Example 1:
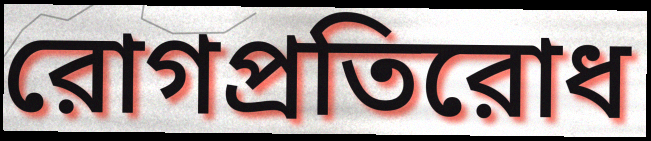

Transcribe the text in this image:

রোগপ্রতিরোধ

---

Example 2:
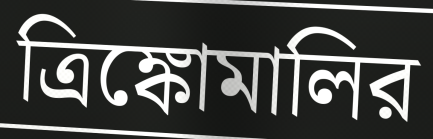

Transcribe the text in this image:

ত্রিঙ্কোমালির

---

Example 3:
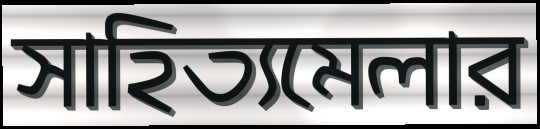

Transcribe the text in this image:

সাহিত্যমেলার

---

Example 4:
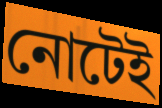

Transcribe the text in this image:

নোটেই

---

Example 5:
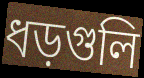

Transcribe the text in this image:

ধড়গুলি